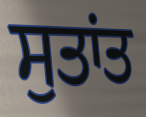
ਸੁਤਾਂਤ